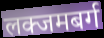
लक्जमबर्ग